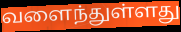
வளைந்துள்ளது